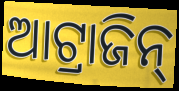
ଆଟ୍ରାଜିନ୍